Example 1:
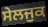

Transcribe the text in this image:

ਸੇਲਜੁਕ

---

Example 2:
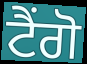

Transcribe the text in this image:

ਟੈਂਗੋ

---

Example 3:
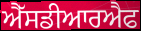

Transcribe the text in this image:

ਐੱਸਡੀਆਰਐਫ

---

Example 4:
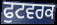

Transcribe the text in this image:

ਫੁਟਵਰਕ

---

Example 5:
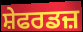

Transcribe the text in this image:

ਸ਼ੇਫਰਡਜ਼